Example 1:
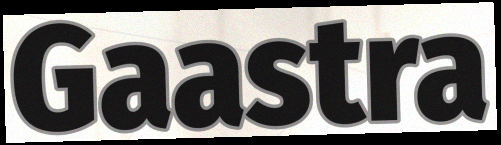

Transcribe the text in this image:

Gaastra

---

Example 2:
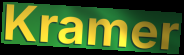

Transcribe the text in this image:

Kramer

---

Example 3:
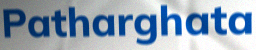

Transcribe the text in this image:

Patharghata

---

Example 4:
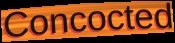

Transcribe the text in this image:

Concocted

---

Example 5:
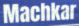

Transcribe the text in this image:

Machkar